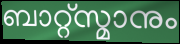
ബാറ്റ്സ്മാനും